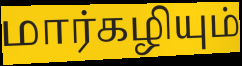
மார்கழியும்